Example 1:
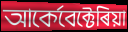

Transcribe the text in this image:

আৰ্কেবেক্টেৰিয়া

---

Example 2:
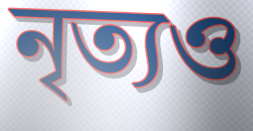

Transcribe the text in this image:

নৃত্যও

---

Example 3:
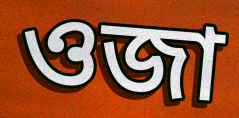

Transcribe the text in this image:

ওজা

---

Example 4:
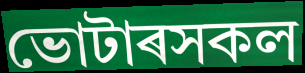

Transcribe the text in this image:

ভোটাৰসকল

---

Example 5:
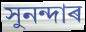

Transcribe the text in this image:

সুনন্দাৰ